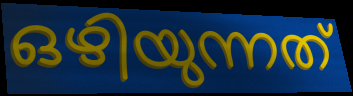
ഒഴിയുന്നത്